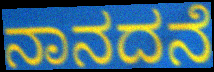
ನಾನದನೆ